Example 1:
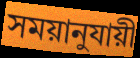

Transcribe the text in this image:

সময়ানুযায়ী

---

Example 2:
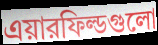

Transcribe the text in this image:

এয়ারফিল্ডগুলো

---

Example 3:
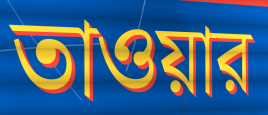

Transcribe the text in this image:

তাওয়ার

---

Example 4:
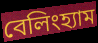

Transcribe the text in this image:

বেলিংহ্যাম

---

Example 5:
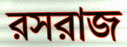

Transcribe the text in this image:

রসরাজ